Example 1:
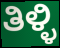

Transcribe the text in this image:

ತಿಳ್ಳಿ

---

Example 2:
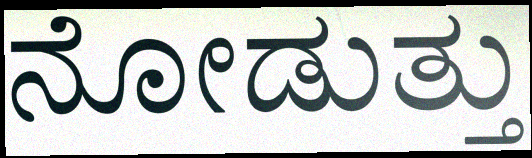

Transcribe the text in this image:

ನೋಡುತ್ತು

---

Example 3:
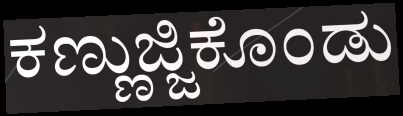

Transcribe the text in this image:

ಕಣ್ಣುಜ್ಜಿಕೊಂಡು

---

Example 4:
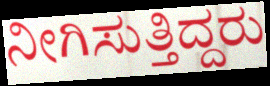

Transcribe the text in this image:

ನೀಗಿಸುತ್ತಿದ್ದರು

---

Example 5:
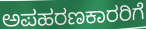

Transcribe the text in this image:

ಅಪಹರಣಕಾರರಿಗೆ